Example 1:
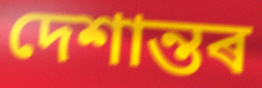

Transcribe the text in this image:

দেশান্তৰ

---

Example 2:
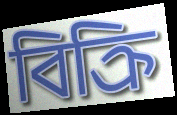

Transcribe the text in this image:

বিক্ৰি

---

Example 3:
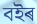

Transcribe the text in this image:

বইৰ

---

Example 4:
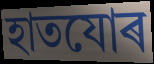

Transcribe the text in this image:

হাতযোৰ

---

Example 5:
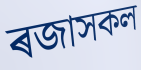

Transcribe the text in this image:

ৰজাসকল